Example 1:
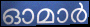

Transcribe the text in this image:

ഓമാർ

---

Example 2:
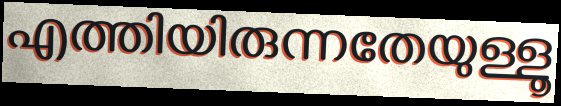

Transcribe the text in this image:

എത്തിയിരുന്നതേയുള്ളൂ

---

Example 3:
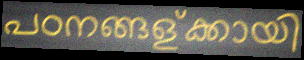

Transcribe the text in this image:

പഠനങ്ങള്ക്കായി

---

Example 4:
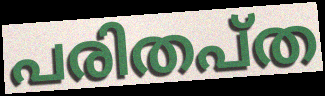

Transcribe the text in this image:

പരിതപ്ത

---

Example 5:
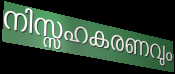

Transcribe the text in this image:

നിസ്സഹകരണവും